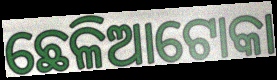
ଛେଳିଆଟୋକା